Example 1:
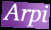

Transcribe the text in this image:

Arpi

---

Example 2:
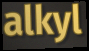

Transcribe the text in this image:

alkyl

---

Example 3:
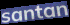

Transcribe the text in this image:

santan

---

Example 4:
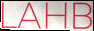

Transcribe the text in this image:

LAHB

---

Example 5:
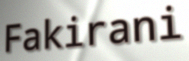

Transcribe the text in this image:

Fakirani